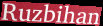
Ruzbihan